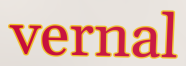
vernal